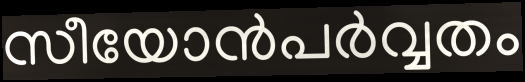
സീയോൻപർവ്വതം